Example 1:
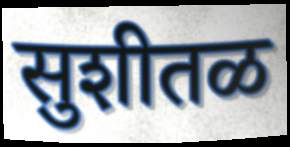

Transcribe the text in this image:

सुशीतळ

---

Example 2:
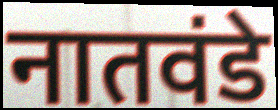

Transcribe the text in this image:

नातवंडे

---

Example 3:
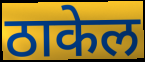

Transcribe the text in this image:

ठाकेल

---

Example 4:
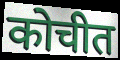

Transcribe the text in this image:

कोचीत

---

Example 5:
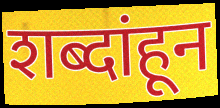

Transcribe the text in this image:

शब्दांहून